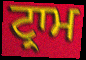
ਟ੍ਰਾਮ